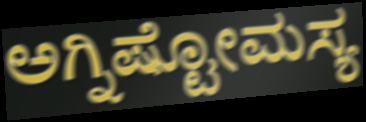
ಅಗ್ನಿಷ್ಟೋಮಸ್ಯ